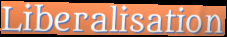
Liberalisation